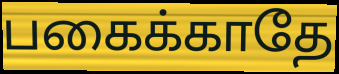
பகைக்காதே